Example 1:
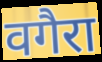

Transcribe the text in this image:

वगैरा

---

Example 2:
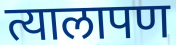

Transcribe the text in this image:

त्यालापण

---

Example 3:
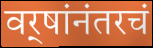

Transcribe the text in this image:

वर्षांनंतरचं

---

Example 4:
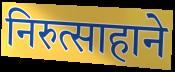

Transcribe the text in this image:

निरुत्साहाने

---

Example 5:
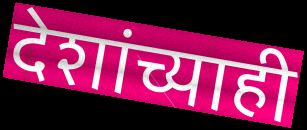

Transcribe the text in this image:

देशांच्याही